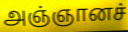
அஞ்ஞானச்